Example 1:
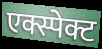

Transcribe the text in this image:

एक्स्पेक्ट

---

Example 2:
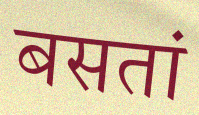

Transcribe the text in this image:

बसतां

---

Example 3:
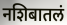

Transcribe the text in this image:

नशिबातलं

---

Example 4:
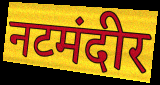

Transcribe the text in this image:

नटमंदीर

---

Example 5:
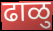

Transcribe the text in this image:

ढाळु